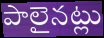
పాలైనట్లు